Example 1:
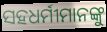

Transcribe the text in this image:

ସହଧର୍ମୀମାନଙ୍କୁ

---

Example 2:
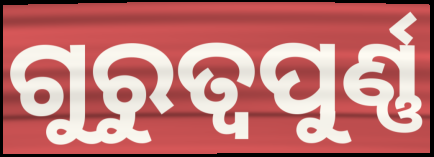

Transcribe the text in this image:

ଗୁରୁତ୍ୱପୁର୍ଣ୍ଣ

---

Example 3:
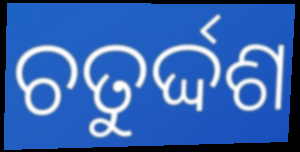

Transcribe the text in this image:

ଚତୁର୍ଦ୍ଦଶ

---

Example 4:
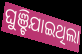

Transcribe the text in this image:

ଘୁଞ୍ଚିଯାଇଥିଲା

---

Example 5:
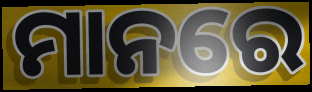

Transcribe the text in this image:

ମାନରେ